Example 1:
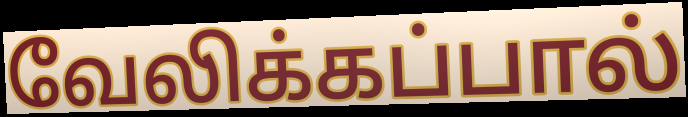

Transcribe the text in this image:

வேலிக்கப்பால்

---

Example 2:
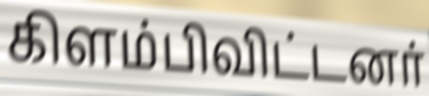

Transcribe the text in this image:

கிளம்பிவிட்டனர்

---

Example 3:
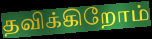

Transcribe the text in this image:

தவிக்கிறோம்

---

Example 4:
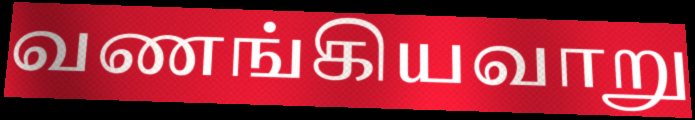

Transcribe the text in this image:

வணங்கியவாறு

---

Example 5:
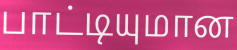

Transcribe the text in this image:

பாட்டியுமான